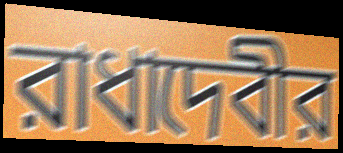
রাধাদেবীর